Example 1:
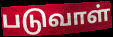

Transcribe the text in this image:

படுவாள்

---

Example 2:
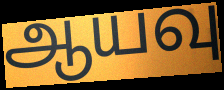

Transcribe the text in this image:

ஆயவு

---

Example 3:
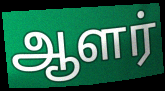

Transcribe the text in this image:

ஆளர்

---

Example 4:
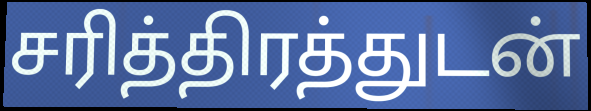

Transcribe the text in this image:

சரித்திரத்துடன்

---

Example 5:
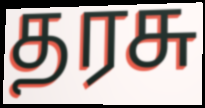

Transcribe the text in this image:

தரசு